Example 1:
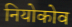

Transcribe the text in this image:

नियोकोव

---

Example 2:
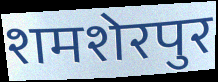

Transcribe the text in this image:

शमशेरपुर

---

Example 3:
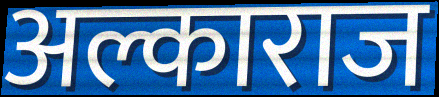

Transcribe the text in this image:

अल्काराज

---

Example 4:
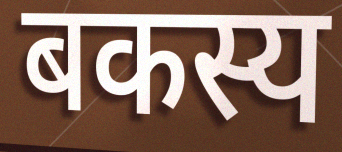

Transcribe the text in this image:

बकस्य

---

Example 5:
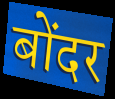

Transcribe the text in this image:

बोंदर